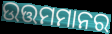
ଉତ୍ତମମାନର